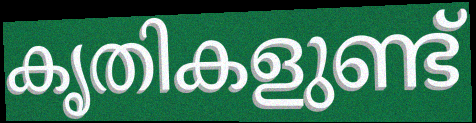
കൃതികളുണ്ട്